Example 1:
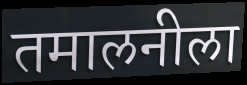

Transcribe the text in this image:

तमालनीला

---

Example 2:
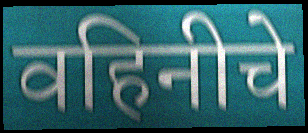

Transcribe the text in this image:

वहिनीचे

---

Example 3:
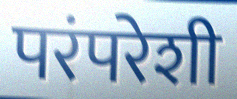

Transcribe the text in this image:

परंपरेशी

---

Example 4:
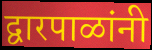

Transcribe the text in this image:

द्वारपाळांनी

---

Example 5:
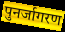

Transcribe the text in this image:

पुनर्जागरण